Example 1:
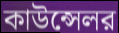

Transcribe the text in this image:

কাউন্সেলর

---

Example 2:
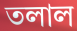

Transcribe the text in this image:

তলাল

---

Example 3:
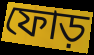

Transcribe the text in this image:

ফোড়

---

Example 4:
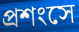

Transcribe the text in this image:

প্রশংসে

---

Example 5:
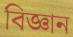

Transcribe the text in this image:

বিজ্ঞান